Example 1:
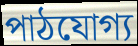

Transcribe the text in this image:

পাঠযোগ্য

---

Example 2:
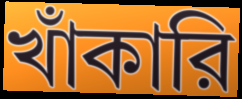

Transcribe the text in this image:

খাঁকারি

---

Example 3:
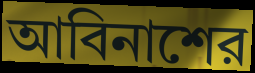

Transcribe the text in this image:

আবিনাশের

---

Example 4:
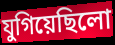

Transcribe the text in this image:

যুগিয়েছিলো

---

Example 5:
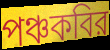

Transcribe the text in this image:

পঞ্চকবির